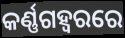
କର୍ଣ୍ଣଗହ୍ଵରରେ